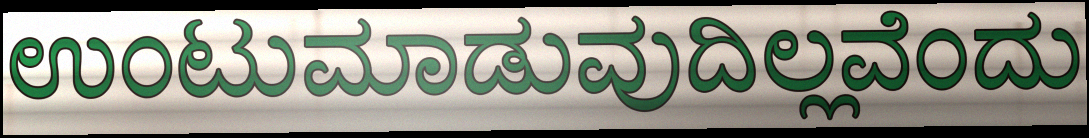
ಉಂಟುಮಾಡುವುದಿಲ್ಲವೆಂದು